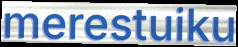
merestuiku